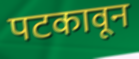
पटकावून